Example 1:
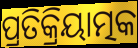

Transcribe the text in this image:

ପ୍ରତିକ୍ରିୟାତ୍ମକ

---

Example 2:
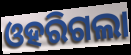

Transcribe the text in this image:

ଓହରିଗଲା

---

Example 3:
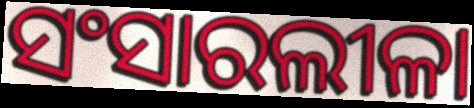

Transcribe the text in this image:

ସଂସାରଲୀଳା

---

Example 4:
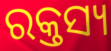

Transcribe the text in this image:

ରକ୍ତସ୍ୟ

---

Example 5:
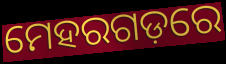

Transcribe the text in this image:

ମେହରଗଡ଼ରେ